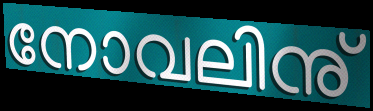
നോവലിനു്